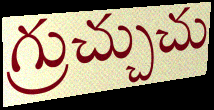
గ్రుచ్చుచు